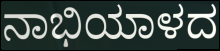
ನಾಭಿಯಾಳದ